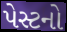
પેસ્ટનો